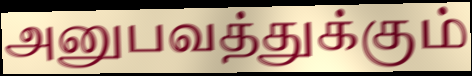
அனுபவத்துக்கும்